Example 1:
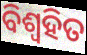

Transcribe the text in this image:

ବିଶ୍ଵହିତ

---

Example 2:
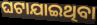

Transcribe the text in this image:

ଘଟାଯାଇଥିବା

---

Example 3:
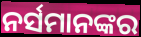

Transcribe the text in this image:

ନର୍ସମାନଙ୍କର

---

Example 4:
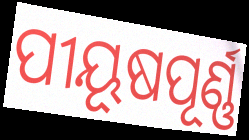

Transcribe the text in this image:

ପୀୟୂଷପୂର୍ଣ୍ଣ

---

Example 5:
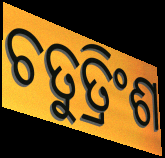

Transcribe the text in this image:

ଚତୁତ୍ରିଂଶ